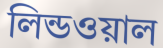
লিন্ডওয়াল